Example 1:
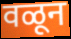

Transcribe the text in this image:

वळून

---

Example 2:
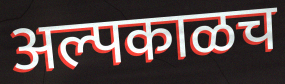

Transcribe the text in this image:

अल्पकाळच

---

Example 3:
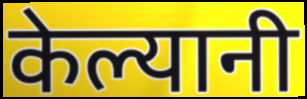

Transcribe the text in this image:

केल्यानी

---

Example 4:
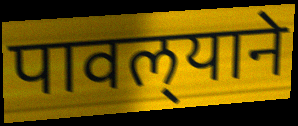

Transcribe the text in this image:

पावल्याने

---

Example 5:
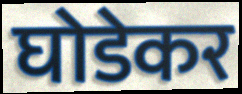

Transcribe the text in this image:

घोडेकर